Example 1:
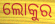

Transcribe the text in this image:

ଲୋକୁର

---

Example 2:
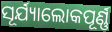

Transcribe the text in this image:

ସୂର୍ଯ୍ୟାଲୋକପୂର୍ଣ୍ଣ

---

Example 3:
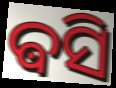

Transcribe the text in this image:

ଵସି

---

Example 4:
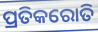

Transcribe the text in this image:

ପ୍ରତିକରୋତି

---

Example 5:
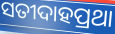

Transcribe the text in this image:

ସତୀଦାହପ୍ରଥା